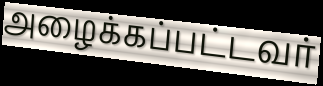
அழைக்கப்பட்டவர்